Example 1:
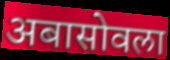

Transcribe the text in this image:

अबासोवला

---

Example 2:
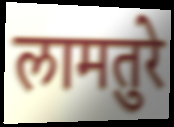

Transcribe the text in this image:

लामतुरे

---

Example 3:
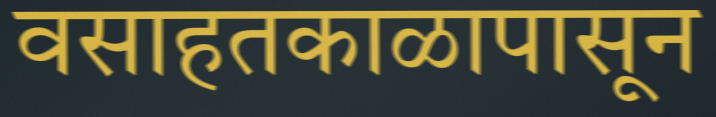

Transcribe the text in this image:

वसाहतकाळापासून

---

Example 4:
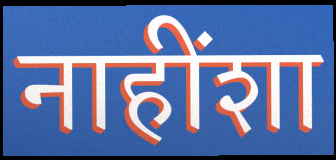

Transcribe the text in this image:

नाहींशा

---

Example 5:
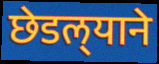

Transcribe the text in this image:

छेडल्याने